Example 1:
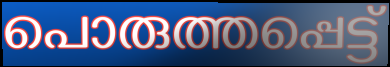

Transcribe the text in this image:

പൊരുത്തപ്പെട്ട്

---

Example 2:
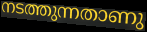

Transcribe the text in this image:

നടത്തുന്നതാണു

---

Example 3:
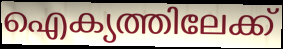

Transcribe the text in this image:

ഐക്യത്തിലേക്ക്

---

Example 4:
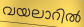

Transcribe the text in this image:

വയലാറിൽ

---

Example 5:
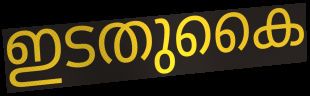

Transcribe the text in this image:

ഇടതുകൈ